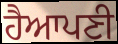
ਹੈਆਪਣੀ